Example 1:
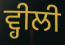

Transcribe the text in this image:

ਵ੍ਹੀਲੀ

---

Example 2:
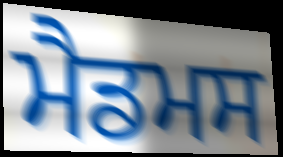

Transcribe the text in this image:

ਮੈਡਮਸ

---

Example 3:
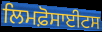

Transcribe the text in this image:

ਲਿਮਫ਼ੋਸਾਈਟਸ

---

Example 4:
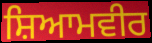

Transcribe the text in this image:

ਸ਼ਿਆਮਵੀਰ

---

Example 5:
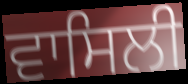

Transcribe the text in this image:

ਵਾਸਿਲੀ